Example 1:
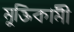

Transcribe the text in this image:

মুক্তিকামী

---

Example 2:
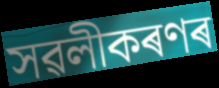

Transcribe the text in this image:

সৱলীকৰণৰ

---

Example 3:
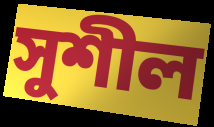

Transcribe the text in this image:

সুশীল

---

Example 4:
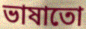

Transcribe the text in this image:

ভাষাতো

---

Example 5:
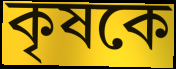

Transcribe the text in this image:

কৃষকে